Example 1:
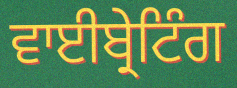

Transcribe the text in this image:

ਵਾਈਬ੍ਰੇਟਿੰਗ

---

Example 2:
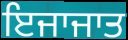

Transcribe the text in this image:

ਇਜਾਜਾਤ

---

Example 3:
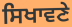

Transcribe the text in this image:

ਸਿਖਾਵਣੇ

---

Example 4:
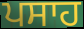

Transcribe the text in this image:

ਪਸਾਹ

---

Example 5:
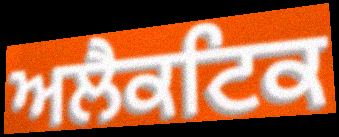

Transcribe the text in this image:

ਅਲੈਕਟਿਕ